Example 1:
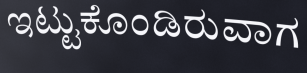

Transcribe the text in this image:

ಇಟ್ಟುಕೊಂಡಿರುವಾಗ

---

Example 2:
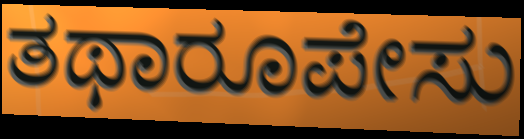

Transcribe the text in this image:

ತಥಾರೂಪೇಸು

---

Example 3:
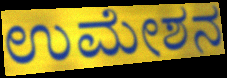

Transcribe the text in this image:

ಉಮೇಶನ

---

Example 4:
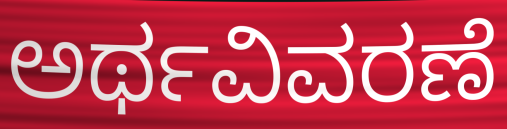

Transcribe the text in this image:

ಅರ್ಥವಿವರಣೆ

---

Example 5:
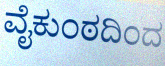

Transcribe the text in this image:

ವೈಕುಂಠದಿಂದ